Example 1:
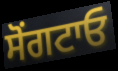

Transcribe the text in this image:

ਸੋਂਗਟਾਓ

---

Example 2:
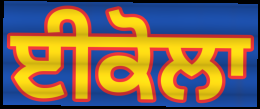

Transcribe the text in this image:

ਈਕੋਲਾ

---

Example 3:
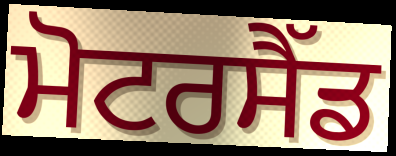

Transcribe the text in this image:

ਮੋਟਰਸੈੱਡ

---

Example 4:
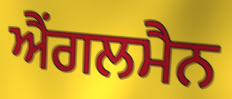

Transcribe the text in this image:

ਐਂਗਲਮੈਨ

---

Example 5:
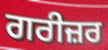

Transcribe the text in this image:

ਗਰੀਜ਼ਰ